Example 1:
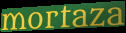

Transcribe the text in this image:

mortaza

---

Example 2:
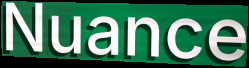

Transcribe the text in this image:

Nuance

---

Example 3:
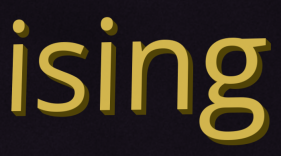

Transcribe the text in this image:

ising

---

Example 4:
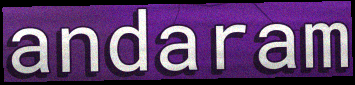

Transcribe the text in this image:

andaram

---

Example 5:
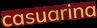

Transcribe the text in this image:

casuarina